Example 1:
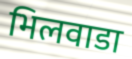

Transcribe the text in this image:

भिलवाडा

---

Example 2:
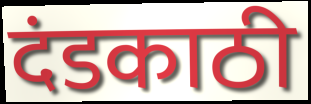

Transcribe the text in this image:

दंडकाठी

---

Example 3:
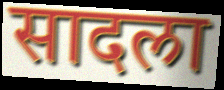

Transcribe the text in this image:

सादला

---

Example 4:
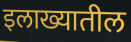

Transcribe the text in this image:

इलाख्यातील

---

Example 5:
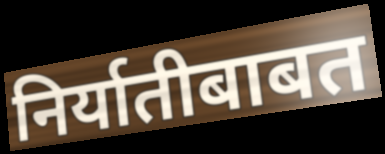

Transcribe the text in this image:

निर्यातीबाबत